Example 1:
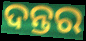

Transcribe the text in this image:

ଦନ୍ତର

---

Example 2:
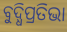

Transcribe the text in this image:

ବୁଦ୍ଧିପ୍ରତିଭା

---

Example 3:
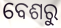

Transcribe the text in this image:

ବେଶରୁ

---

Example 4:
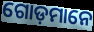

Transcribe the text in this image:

ଗୋଡ଼ମାନେ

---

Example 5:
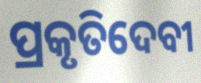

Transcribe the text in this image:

ପ୍ରକୃତିଦେବୀ